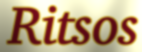
Ritsos